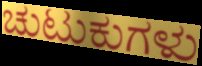
ಚುಟುಕುಗಳು